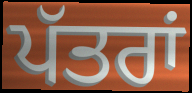
ਪੱਤਰਾਂ